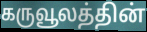
கருவூலத்தின்